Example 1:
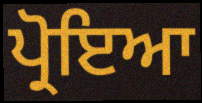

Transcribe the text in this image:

ਪ੍ਰੋਇਆ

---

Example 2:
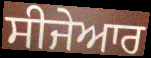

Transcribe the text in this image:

ਸੀਜੇਆਰ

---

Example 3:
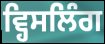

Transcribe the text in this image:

ਵ੍ਹਿਸਲਿੰਗ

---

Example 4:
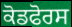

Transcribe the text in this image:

ਕੋਡਫੋਰਸ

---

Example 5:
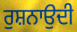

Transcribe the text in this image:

ਰੁਸ਼ਨਾਉਦੀ